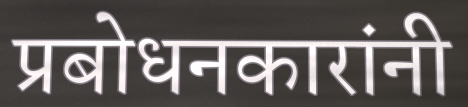
प्रबोधनकारांनी